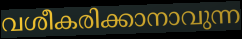
വശീകരിക്കാനാവുന്ന